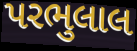
પરભુલાલ